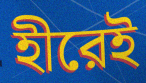
হীরেই